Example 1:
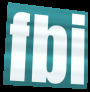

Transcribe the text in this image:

fbi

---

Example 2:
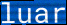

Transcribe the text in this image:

luar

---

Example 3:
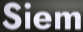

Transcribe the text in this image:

Siem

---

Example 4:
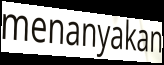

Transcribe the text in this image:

menanyakan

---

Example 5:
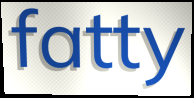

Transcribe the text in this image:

fatty